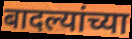
बादल्यांच्या